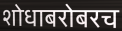
शोधाबरोबरच